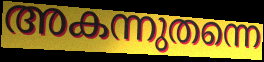
അകന്നുതന്നെ